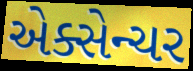
એક્સેન્ચર